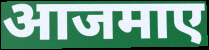
आजमाए